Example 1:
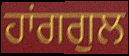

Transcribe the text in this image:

ਹਾਂਗਗੁਲ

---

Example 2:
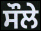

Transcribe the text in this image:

ਸੌਲੇ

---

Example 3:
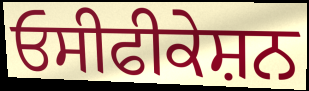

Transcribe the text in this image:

ਓਸੀਫੀਕੇਸ਼ਨ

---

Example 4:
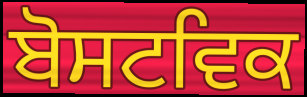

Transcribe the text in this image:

ਬੋਸਟਵਿਕ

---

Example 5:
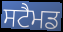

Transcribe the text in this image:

ਸਟੈਮਡ